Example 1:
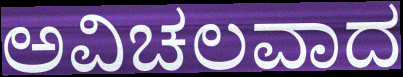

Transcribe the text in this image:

ಅವಿಚಲವಾದ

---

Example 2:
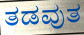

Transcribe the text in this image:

ತಡವುತ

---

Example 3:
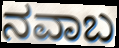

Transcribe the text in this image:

ನವಾಬ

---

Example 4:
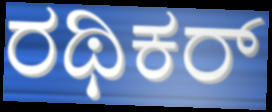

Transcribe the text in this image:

ರಥಿಕರ್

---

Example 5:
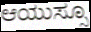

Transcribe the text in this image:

ಆಯುಸ್ಸೂ